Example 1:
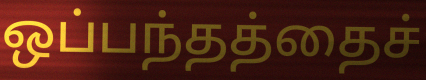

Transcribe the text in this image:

ஒப்பந்தத்தைச்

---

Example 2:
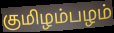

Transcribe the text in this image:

குமிழம்பழம்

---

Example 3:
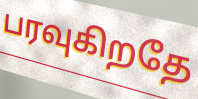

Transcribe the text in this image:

பரவுகிறதே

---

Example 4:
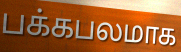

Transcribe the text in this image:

பக்கபலமாக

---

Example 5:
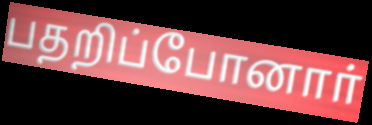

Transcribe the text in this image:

பதறிப்போனார்